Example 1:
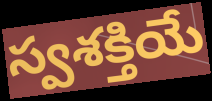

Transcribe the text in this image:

స్వశక్తియే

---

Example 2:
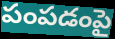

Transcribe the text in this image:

పంపడంపై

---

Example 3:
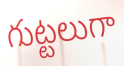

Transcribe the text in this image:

గుట్టలుగా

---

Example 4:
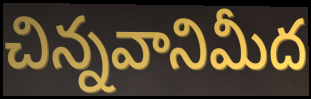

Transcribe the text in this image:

చిన్నవానిమీద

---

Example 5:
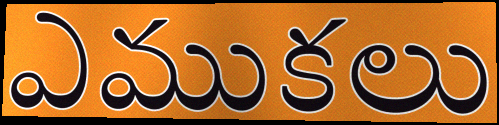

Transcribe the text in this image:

ఎముకలు